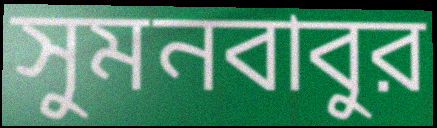
সুমনবাবুর